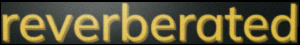
reverberated